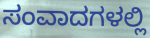
ಸಂವಾದಗಳಲ್ಲಿ